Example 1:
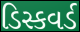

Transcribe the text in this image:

ડિસ્કવર્ડ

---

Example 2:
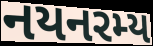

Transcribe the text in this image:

નયનરમ્ય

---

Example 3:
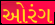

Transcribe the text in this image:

ઓરંગ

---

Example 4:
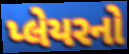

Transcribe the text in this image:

પ્લેયરનો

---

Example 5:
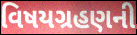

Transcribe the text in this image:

વિષયગ્રહણની